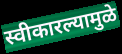
स्वीकारल्यामुळे